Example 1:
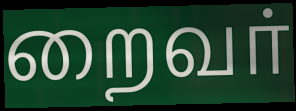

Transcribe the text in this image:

றைவர்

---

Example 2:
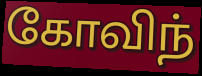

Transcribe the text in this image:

கோவிந்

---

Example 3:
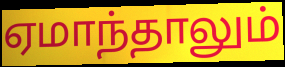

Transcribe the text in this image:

ஏமாந்தாலும்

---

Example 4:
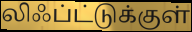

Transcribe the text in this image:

லிஃப்ட்டுக்குள்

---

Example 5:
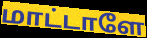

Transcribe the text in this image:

மாட்டாளே